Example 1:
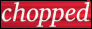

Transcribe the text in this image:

chopped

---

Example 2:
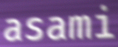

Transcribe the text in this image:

asami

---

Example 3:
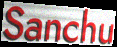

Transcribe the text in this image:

Sanchu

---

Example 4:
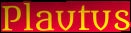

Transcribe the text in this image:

Plautus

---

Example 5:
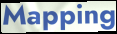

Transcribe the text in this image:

Mapping